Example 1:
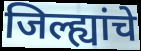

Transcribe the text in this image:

जिल्ह्यांचे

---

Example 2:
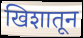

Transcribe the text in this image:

खिशातून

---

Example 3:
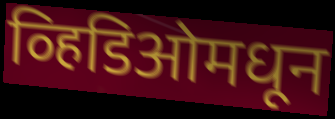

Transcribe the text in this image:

व्हिडिओमधून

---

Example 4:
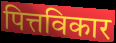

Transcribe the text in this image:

पित्तविकार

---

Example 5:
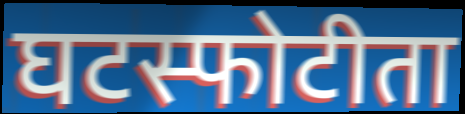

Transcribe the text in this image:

घटस्फोटीता